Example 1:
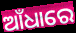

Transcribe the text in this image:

ଆଁଧାରେ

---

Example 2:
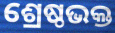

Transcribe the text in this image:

ଶ୍ରେଷ୍ଠଭକ୍ତ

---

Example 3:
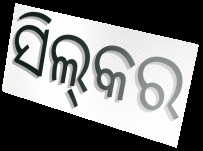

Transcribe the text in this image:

ସିଲ୍‍କର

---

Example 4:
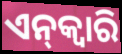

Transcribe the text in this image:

ଏନ୍‌କ୍ୱାରି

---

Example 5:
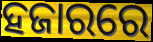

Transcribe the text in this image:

ହଜାରରେ